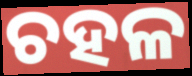
ଚହଳ